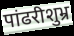
पांढरीशुभ्र